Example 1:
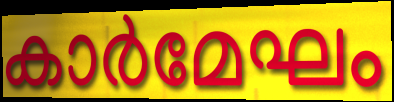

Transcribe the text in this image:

കാർമേഘം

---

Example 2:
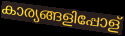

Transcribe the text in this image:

കാര്യങ്ങളിപ്പോള്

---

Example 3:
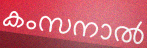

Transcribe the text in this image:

കംസനാൽ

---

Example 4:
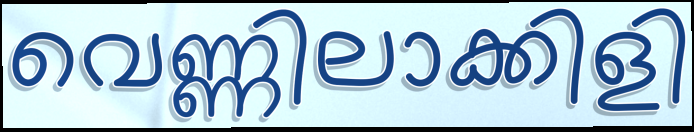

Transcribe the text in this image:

വെണ്ണിലാക്കിളി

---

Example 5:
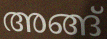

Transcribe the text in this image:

അങ്ങ്